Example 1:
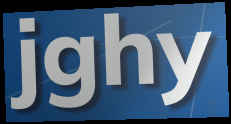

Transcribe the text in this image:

jghy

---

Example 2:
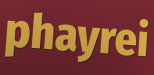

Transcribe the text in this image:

phayrei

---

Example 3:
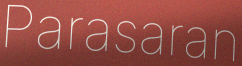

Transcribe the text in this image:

Parasaran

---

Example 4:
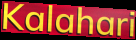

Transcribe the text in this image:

Kalahari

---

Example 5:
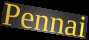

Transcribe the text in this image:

Pennai